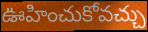
ఊహించుకోవచ్చు